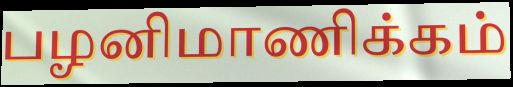
பழனிமாணிக்கம்